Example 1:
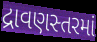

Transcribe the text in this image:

દ્રાવણસ્તરમાં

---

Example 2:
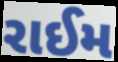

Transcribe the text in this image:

રાઈમ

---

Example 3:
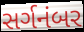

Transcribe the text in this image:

સર્ગનંબર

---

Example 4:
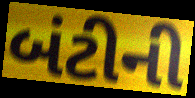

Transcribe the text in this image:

બંટીની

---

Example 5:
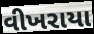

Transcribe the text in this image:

વીખરાયા